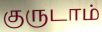
குருடாம்